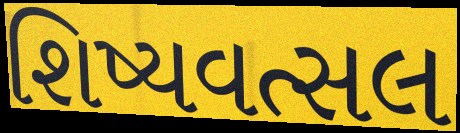
શિષ્યવત્સલ